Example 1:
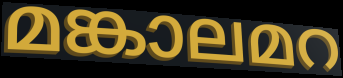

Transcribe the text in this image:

മങ്കാലമറ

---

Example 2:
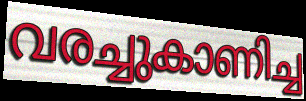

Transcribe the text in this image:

വരച്ചുകാണിച്ച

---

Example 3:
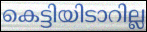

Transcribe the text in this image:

കെട്ടിയിടാറില്ല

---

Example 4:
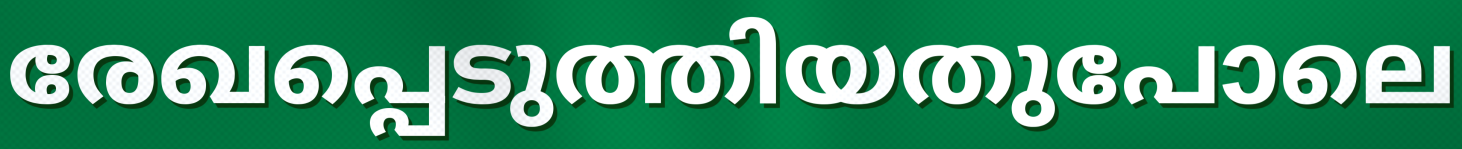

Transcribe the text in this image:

രേഖപ്പെടുത്തിയതുപോലെ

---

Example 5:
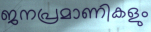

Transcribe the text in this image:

ജനപ്രമാണികളും